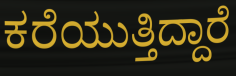
ಕರೆಯುತ್ತಿದ್ದಾರೆ